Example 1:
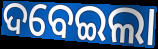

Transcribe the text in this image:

ଦବେଇଲା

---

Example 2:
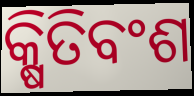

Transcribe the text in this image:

କ୍ଷିତିବଂଶ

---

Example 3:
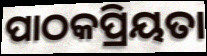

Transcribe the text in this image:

ପାଠକପ୍ରିୟତା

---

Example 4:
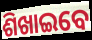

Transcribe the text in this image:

ଶିଖାଇବେ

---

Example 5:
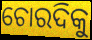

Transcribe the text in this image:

ଚୋରଦିକୁ